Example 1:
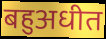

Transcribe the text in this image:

बहुअधीत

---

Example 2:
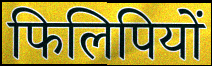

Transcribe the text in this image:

फिलिपियों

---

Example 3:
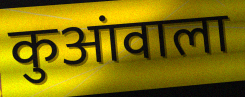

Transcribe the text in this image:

कुआंवाला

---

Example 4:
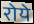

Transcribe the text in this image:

रोये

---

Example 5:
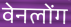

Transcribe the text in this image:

वेनलोंग